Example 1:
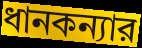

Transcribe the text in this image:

ধানকন্যার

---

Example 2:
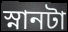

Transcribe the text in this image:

স্নানটা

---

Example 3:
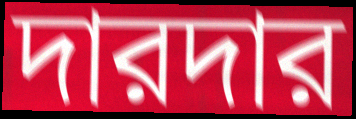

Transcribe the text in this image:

দারদার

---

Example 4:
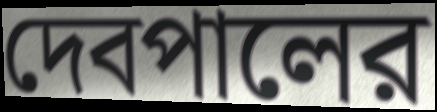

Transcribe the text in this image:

দেবপালের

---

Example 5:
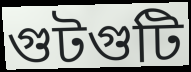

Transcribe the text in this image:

গুটগুটি